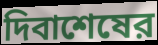
দিবাশেষের